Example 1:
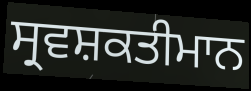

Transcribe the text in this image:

ਸ੍ਰਵਸ਼ਕਤੀਮਾਨ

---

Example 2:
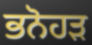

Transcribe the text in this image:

ਭਨੋਹੜ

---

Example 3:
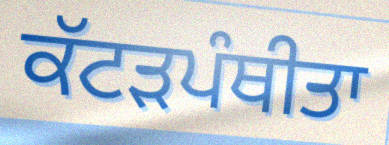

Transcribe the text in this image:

ਕੱਟੜਪੰਥੀਤਾ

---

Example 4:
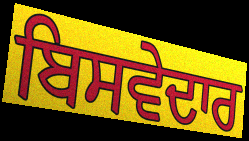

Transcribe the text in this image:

ਬਿਸਵੇਦਾਰ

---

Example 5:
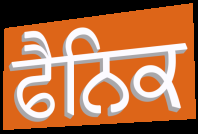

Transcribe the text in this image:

ਫੈਨਿਕ